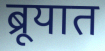
ब्रूयात